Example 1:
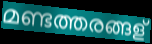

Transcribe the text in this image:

മണ്ടത്തരങ്ങള്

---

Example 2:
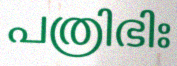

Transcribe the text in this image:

പത്രിഭിഃ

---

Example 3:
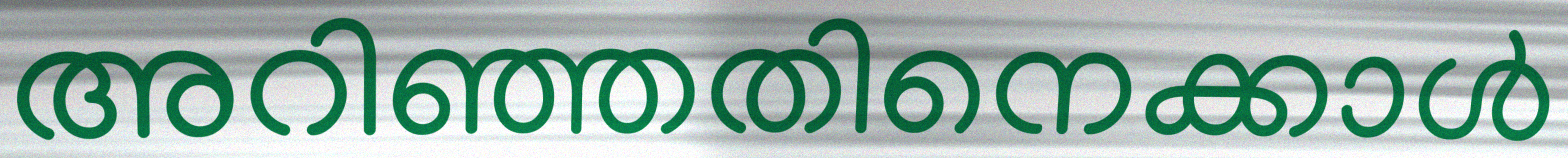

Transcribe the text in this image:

അറിഞ്ഞതിനെക്കാൾ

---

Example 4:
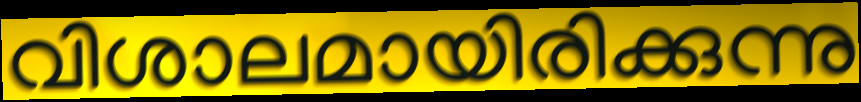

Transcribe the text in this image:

വിശാലമായിരിക്കുന്നു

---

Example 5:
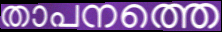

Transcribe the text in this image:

താപനത്തെ